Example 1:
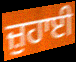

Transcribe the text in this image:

ਜ਼ੁਹਾਈ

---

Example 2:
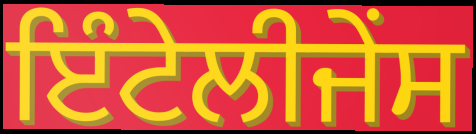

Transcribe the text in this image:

ਇੰਟੇਲੀਜੇੰਸ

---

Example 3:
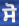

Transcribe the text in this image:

ਸੋ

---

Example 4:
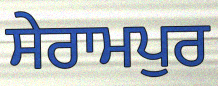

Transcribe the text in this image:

ਸੇਰਾਮਪੁਰ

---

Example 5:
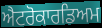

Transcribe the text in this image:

ਐਟਰੋਕਾਰਡਿਅਮ